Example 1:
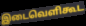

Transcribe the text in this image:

இடைவெளிகூட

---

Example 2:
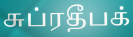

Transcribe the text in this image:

சுப்ரதீபக்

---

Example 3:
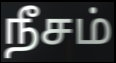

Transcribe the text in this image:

நீசம்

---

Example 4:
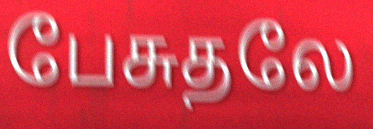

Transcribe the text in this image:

பேசுதலே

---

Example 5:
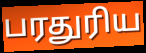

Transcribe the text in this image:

பரதுரிய